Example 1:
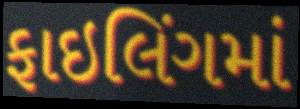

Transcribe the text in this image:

ફાઇલિંગમાં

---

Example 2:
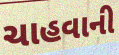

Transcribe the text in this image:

ચાહવાની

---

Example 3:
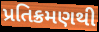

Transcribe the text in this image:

પ્રતિક્રમણથી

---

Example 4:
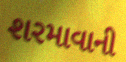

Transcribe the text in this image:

શરમાવાની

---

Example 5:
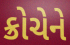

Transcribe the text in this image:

ક્રોચેને